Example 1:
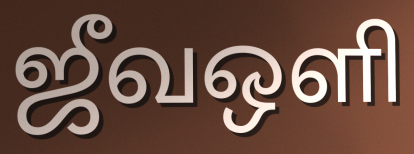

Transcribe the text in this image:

ஜீவஒளி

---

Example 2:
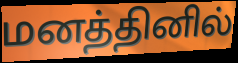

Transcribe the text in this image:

மனத்தினில்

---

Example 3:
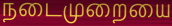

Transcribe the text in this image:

நடைமுறையை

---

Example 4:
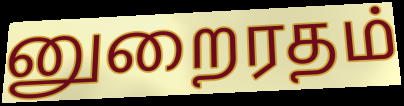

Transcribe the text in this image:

னுறைரதம்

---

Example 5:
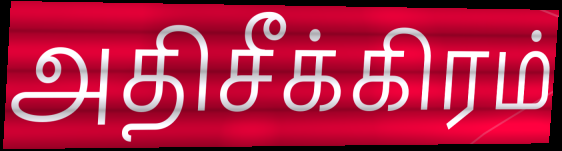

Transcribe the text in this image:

அதிசீக்கிரம்